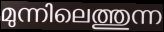
മുന്നിലെത്തുന്ന